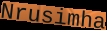
Nrusimha